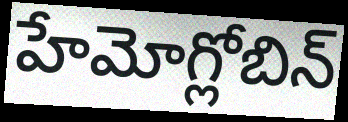
హేమోగ్లోబిన్